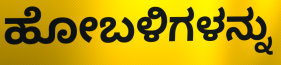
ಹೋಬಳಿಗಳನ್ನು